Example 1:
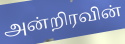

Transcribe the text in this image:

அன்றிரவின்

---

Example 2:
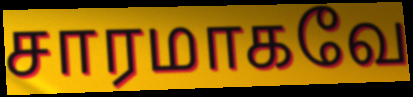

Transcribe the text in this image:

சாரமாகவே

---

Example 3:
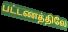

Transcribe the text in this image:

பட்டணத்திலே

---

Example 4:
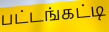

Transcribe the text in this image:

பட்டங்கட்டி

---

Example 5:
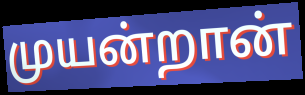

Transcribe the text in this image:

முயன்றான்